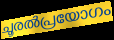
ചൂരൽപ്രയോഗം